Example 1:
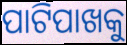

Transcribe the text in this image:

ପାଟିପାଖକୁ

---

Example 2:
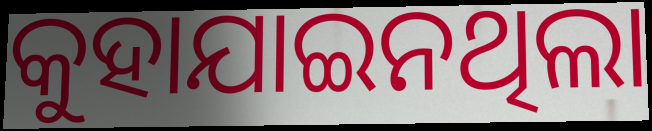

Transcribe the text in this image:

କୁହାଯାଇନଥିଲା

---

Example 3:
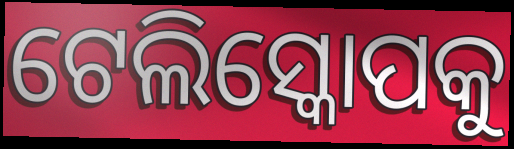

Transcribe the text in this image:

ଟେଲିସ୍କୋପକୁ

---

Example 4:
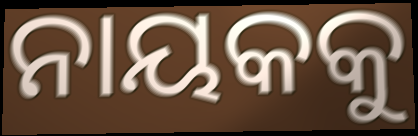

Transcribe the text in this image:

ନାୟକକୁ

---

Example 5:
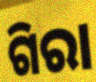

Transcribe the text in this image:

ଗିରା